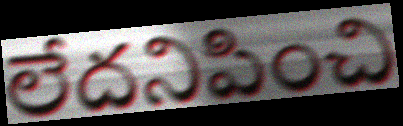
లేదనిపించి